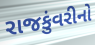
રાજકુંવરીનો